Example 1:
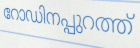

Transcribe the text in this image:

റോഡിനപ്പുറത്ത്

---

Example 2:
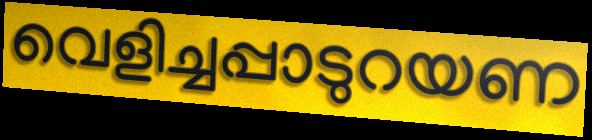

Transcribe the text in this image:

വെളിച്ചപ്പാടുറയണ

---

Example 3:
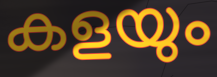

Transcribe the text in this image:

കളയും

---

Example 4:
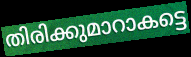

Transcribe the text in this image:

തിരിക്കുമാറാകട്ടെ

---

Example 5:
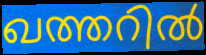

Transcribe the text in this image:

ഖത്തറിൽ